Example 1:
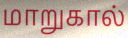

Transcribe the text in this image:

மாறுகால்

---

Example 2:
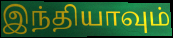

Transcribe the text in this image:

இந்தியாவும்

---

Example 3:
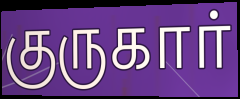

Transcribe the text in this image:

குருகார்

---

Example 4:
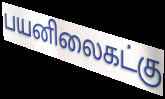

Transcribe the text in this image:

பயனிலைகட்கு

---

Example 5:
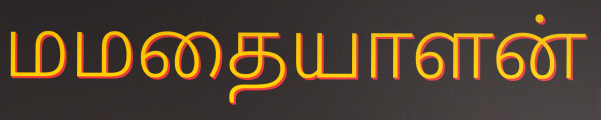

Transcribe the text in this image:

மமதையாளன்